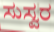
ಸುಸ್ವರ